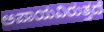
ಅಪಾಯವಿರುತ್ತದೆ